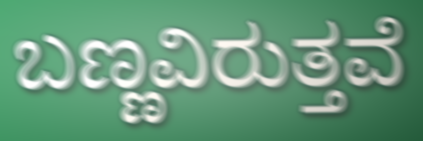
ಬಣ್ಣವಿರುತ್ತವೆ